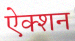
ऐक्शन